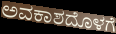
ಅವಕಾಶದೊಳಗೆ